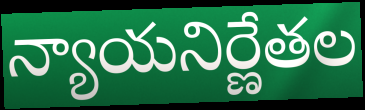
న్యాయనిర్ణేతల